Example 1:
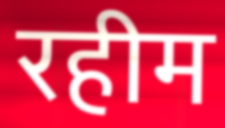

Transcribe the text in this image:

रहीम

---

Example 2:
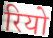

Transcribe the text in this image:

रियो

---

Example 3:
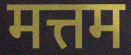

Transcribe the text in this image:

मत्तम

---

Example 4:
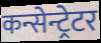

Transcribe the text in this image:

कन्सेन्ट्रेटर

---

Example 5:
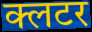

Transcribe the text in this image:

क्लटर